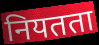
नियतता